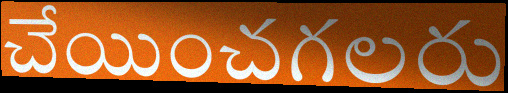
చేయించగలరు